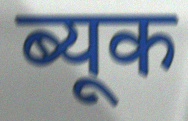
ब्यूक